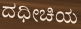
ದಧೀಚಿಯ